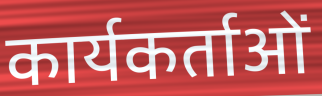
कार्यकर्ताओं